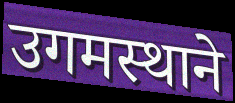
उगमस्थाने